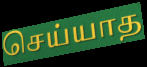
செய்யாத